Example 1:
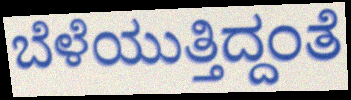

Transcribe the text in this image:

ಬೆಳೆಯುತ್ತಿದ್ದಂತೆ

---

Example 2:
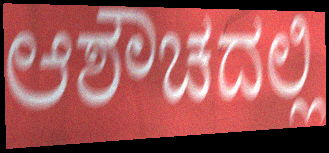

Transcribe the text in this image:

ಆಶೌಚದಲ್ಲಿ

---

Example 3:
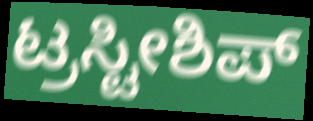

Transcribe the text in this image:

ಟ್ರಸ್ಟೀಶಿಪ್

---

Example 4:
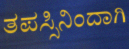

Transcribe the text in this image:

ತಪಸ್ಸಿನಿಂದಾಗಿ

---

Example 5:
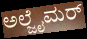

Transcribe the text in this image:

ಅಲ್ಜೈಮರ್